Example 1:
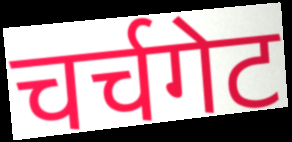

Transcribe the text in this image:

चर्चगेट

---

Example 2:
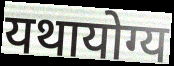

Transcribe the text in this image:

यथायोग्य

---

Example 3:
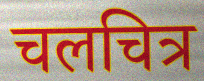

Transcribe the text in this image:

चलचित्र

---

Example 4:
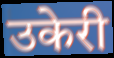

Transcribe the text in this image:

उकेरी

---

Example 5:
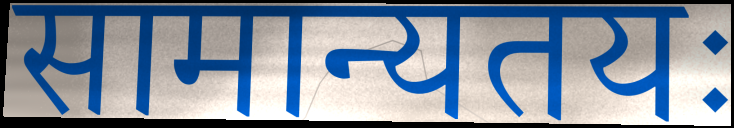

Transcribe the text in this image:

सामान्यतयः